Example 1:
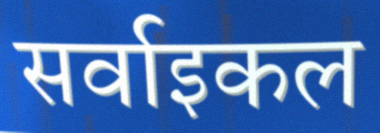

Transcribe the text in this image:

सर्वाइकल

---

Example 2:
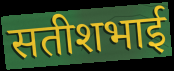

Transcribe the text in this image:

सतीशभाई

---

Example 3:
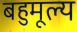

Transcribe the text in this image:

बहुमूल्य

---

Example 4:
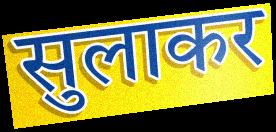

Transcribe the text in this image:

सुलाकर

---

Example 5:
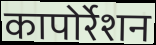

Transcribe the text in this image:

कापोर्रेशन